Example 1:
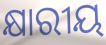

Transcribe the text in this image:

କ୍ଷାରୀୟ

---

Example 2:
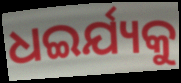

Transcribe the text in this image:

ଧଇର୍ଯ୍ୟକୁ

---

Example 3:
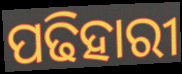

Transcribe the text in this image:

ପଢିହାରୀ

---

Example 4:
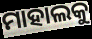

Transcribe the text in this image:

ମାହାଲକୁ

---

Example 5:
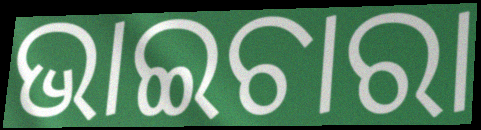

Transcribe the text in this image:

ଭାଇଚାରା